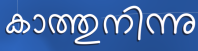
കാത്തുനിന്നു